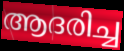
ആദരിച്ച